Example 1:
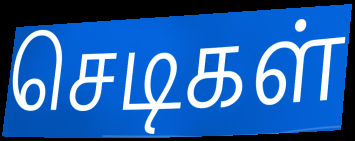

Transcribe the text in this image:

செடிகள்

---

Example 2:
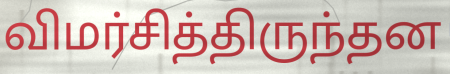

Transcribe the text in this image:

விமர்சித்திருந்தன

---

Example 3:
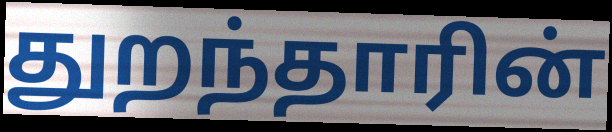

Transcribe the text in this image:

துறந்தாரின்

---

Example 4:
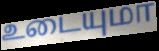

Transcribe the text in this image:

உடையுமா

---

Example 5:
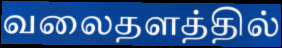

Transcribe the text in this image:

வலைதளத்தில்